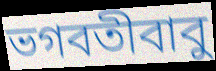
ভগবতীবাবু